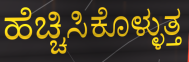
ಹೆಚ್ಚಿಸಿಕೊಳ್ಳುತ್ತ